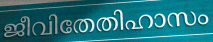
ജീവിതേതിഹാസം